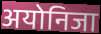
अयोनिजा